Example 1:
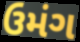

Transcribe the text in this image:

ઉમંગ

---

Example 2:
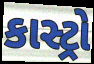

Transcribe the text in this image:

કાસ્ટ્રો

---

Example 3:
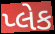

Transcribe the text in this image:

પ્લેક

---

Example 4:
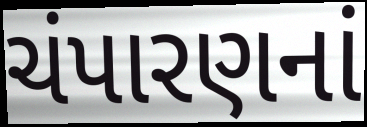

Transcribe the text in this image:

ચંપારણનાં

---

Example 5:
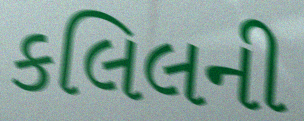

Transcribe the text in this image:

કલિલની